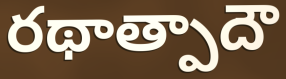
రథాత్పాదౌ